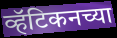
व्हॅटिकनच्या